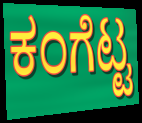
ಕಂಗೆಟ್ಟ